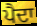
ਪੈਦਾ